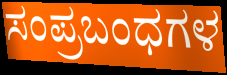
ಸಂಪ್ರಬಂಧಗಳ